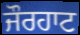
ਜੌਰਹਾਟ